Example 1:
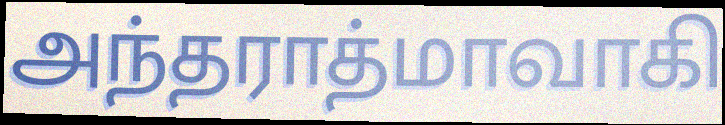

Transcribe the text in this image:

அந்தராத்மாவாகி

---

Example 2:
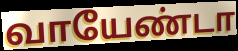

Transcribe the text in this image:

வாயேண்டா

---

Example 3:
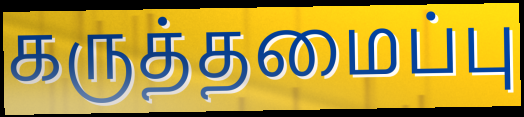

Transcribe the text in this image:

கருத்தமைப்பு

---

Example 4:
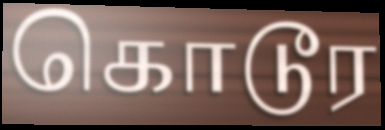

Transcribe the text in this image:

கொடூர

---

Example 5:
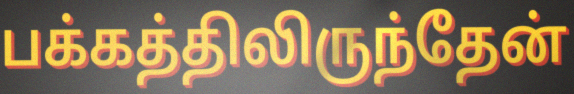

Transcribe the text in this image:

பக்கத்திலிருந்தேன்